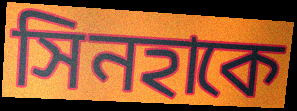
সিনহাকে